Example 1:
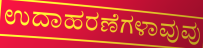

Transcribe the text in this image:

ಉದಾಹರಣೆಗಳಾವುವು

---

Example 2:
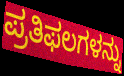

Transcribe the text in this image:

ಪ್ರತಿಫಲಗಳನ್ನು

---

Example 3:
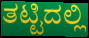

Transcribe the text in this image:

ತಟ್ಟಿದಲ್ಲಿ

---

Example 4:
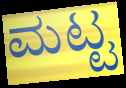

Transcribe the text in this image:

ಮಟ್ಟ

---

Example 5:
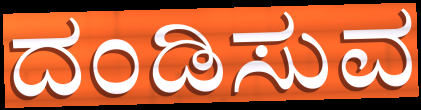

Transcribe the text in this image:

ದಂಡಿಸುವ